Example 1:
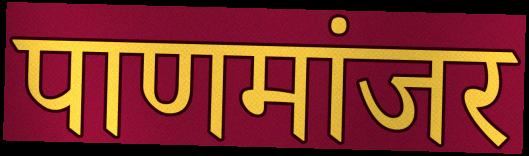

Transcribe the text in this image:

पाणमांजर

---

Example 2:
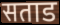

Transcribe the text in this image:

सताड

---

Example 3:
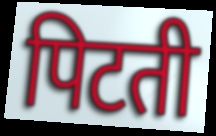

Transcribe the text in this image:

पिटती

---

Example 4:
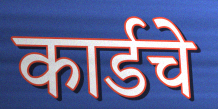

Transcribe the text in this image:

कार्डचे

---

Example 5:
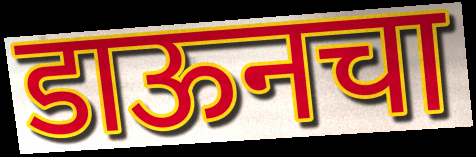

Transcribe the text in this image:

डाऊनचा